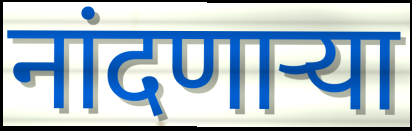
नांदणार्‍या